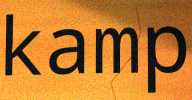
kamp